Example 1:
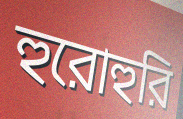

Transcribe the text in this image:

হুরোহুরি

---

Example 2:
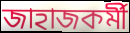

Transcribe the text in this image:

জাহাজকর্মী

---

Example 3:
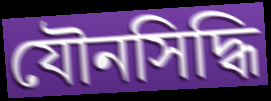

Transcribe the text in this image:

যৌনসিদ্ধি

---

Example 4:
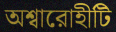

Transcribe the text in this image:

অশ্বারোহীটি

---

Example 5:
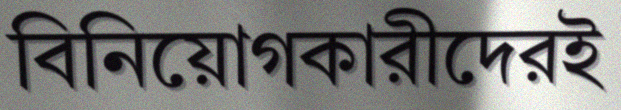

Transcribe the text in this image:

বিনিয়োগকারীদেরই